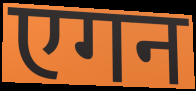
एगन